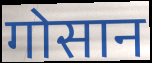
गोसान